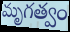
మృగత్వం